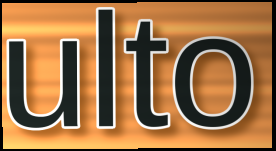
ulto